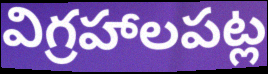
విగ్రహాలపట్ల